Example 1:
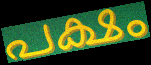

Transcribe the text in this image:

പക്ഷം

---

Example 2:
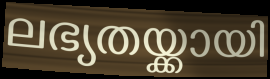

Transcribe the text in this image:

ലഭ്യതയ്ക്കായി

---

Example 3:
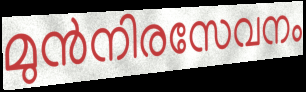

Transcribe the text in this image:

മുൻനിരസേവനം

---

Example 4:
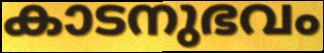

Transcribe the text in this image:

കാടനുഭവം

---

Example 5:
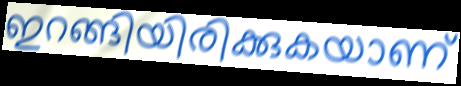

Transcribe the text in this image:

ഇറങ്ങിയിരിക്കുകയാണ്